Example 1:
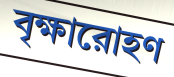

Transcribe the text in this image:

বৃক্ষারোহণ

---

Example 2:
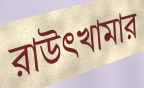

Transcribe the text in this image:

রাউৎখামার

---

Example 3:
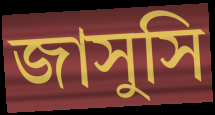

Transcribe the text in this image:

জাসুসি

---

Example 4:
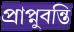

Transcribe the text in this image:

প্রাপ্নুবন্তি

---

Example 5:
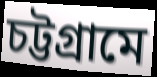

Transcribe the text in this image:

চট্টগ্রামে